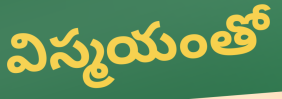
విస్మయంతో